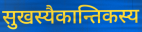
सुखस्यैकान्तिकस्य